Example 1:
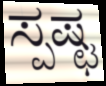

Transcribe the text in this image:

ಸ್ಪಷ್ಟ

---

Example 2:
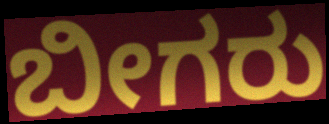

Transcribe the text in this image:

ಬೀಗರು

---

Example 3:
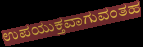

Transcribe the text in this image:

ಉಪಯುಕ್ತವಾಗುವಂತಹ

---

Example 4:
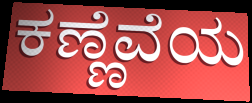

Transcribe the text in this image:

ಕಣ್ಣೆವೆಯ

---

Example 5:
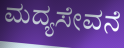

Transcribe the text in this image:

ಮದ್ಯಸೇವನೆ